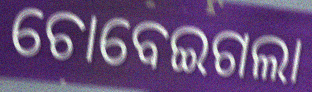
ଚୋବେଇଗଲା